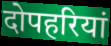
दोपहरियां